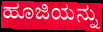
ಹೂಜಿಯನ್ನು